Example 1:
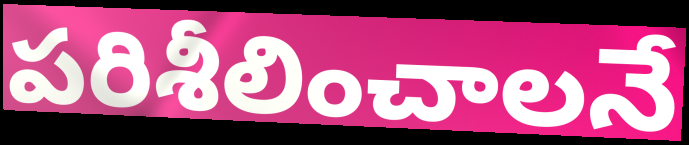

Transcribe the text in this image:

పరిశీలించాలనే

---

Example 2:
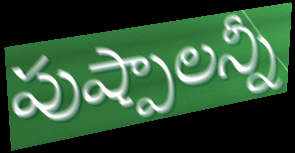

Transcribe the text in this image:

పుష్పాలన్నీ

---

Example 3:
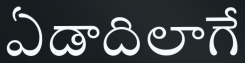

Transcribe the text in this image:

ఏడాదిలాగే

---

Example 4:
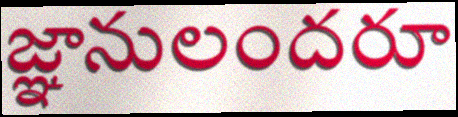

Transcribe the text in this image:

జ్ఞానులందరూ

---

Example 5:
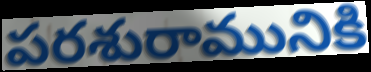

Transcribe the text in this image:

పరశురామునికి